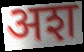
अश